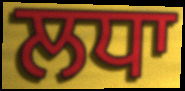
ਲਧਾ